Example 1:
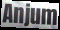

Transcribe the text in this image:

Anjum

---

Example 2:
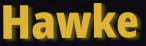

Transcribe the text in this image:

Hawke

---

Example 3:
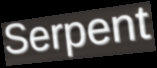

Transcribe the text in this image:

Serpent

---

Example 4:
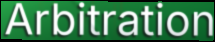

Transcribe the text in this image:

Arbitration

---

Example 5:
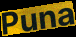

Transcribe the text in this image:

Puna